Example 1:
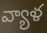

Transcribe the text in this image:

వ్యాళ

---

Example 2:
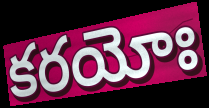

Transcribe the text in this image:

కరయోః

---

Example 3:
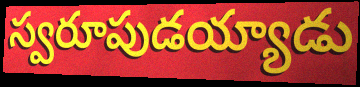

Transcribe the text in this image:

స్వరూపుడయ్యాడు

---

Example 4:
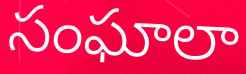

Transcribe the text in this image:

సంఘాలా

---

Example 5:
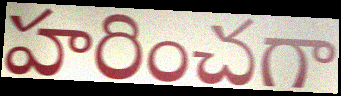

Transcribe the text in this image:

హరించగా